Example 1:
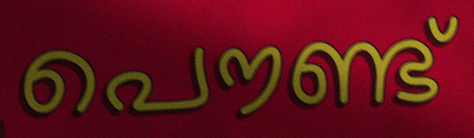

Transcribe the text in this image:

പൌണ്ട്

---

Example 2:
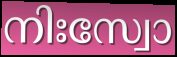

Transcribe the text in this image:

നിഃസ്വോ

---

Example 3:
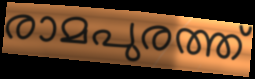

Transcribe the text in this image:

രാമപുരത്ത്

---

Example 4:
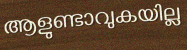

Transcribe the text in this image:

ആളുണ്ടാവുകയില്ല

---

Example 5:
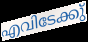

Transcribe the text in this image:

എവിടേക്കു്